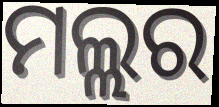
ମଲ୍ଲର